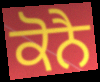
ਕੋਨੈ